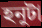
হনুটা